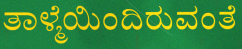
ತಾಳ್ಮೆಯಿಂದಿರುವಂತೆ